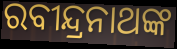
ରବୀନ୍ଦ୍ରନାଥଙ୍କ